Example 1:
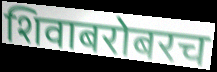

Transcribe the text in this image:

शिवाबरोबरच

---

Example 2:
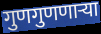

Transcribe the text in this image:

गुणगुणणाऱ्या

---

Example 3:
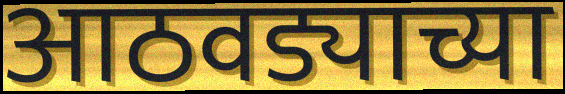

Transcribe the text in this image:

आठवड्याच्या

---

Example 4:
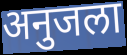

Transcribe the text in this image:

अनुजला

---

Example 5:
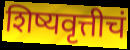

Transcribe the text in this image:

शिष्यवृत्तीचं